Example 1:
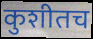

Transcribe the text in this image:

कुशीतच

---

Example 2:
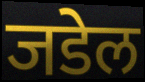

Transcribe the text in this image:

जडेल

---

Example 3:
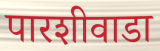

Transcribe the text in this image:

पारशीवाडा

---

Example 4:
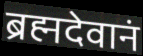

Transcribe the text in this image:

ब्रह्मदेवानं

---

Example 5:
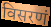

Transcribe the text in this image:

विसरणं